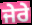
ਜੇਰੇ